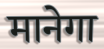
मानेगा